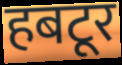
हबटूर